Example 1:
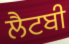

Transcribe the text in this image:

ਲੈਟਬੀ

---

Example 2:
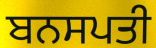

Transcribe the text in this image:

ਬਨਸਪਤੀ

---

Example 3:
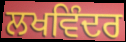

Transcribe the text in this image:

ਲਖਵਿੰਦਰ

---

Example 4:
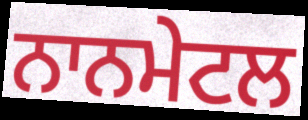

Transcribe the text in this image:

ਨਾਨਮੇਟਲ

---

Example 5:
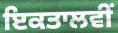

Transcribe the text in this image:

ਇਕਤਾਲਵੀਂ